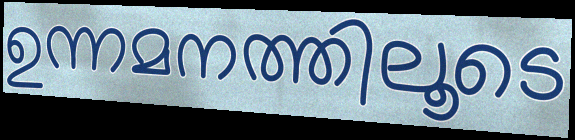
ഉന്നമനത്തിലൂടെ